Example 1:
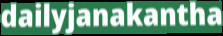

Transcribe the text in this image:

dailyjanakantha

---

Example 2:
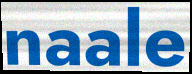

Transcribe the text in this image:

naale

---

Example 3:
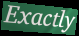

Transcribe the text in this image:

Exactly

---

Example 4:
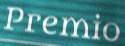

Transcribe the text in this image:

Premio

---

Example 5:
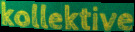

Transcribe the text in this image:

kollektive